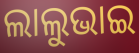
ଲାଲୁଭାଇ